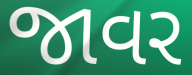
જાવર